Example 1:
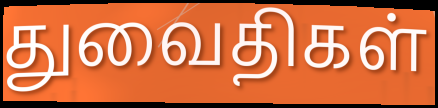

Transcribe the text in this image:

துவைதிகள்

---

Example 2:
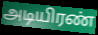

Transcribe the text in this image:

அடியிரண்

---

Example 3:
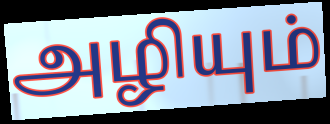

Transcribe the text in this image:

அழியும்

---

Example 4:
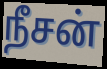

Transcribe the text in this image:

நீசன்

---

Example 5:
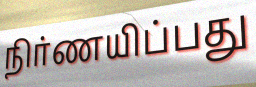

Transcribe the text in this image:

நிர்ணயிப்பது